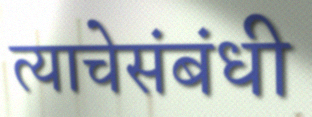
त्याचेसंबंधी